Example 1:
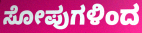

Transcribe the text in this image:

ಸೋಪುಗಳಿಂದ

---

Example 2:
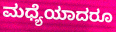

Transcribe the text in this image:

ಮಧ್ಯೆಯಾದರೂ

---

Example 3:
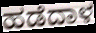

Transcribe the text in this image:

ಹಡೆದಾಳ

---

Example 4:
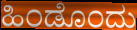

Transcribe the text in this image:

ಹಿಂಡೊಂದು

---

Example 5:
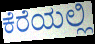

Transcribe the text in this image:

ಕೆರೆಯಲ್ಲಿ